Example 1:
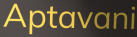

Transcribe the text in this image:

Aptavani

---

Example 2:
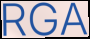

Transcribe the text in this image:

RGA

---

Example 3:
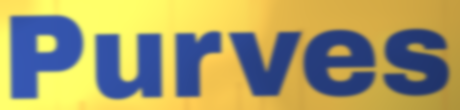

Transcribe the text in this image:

Purves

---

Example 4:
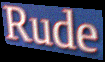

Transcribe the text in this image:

Rude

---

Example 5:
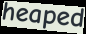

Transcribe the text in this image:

heaped